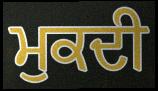
ਮੁਕਦੀ